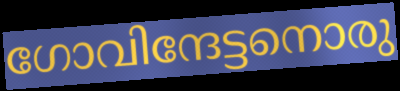
ഗോവിന്ദേട്ടനൊരു